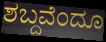
ಶಬ್ದವೆಂದೂ